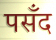
पसँद